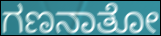
ಗಣನಾತೋ